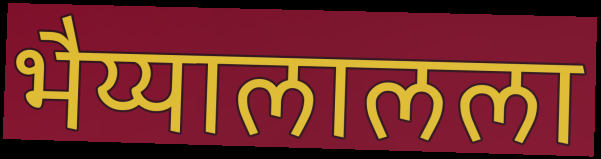
भैय्यालालला